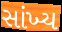
સાંખ્ય